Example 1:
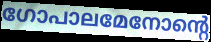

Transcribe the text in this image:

ഗോപാലമേനോന്റെ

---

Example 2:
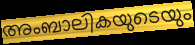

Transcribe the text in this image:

അംബാലികയുടെയും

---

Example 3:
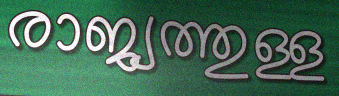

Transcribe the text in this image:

രാജ്യത്തുള്ള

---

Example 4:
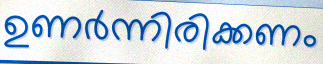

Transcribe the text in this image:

ഉണർന്നിരിക്കണം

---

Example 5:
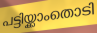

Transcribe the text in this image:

പട്ടിയ്ക്കാംതൊടി